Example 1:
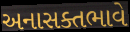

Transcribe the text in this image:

અનાસક્તભાવે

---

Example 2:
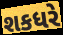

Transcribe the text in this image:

શકધરે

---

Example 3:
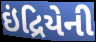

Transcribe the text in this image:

ઇંદ્રિયેની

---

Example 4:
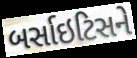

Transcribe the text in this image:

બર્સાઇટિસને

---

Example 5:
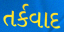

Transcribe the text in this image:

તર્કવાદ